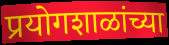
प्रयोगशाळांच्या